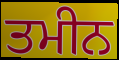
ਤਮੀਨ